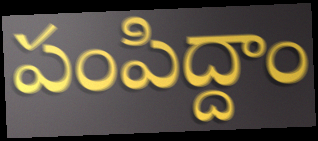
పంపిద్దాం